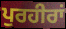
ਪੁਰਹੀਰਾਂ